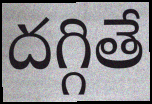
దగ్గితే